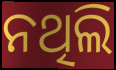
ନଥିଲି